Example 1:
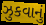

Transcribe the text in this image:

ઝુકવાનું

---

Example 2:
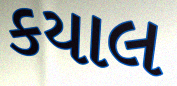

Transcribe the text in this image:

કયાલ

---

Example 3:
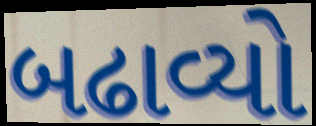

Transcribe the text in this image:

બઢાવ્યો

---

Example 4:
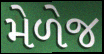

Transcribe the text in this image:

મેળેજ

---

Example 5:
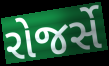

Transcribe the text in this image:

રોજર્સે